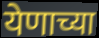
येणाच्या